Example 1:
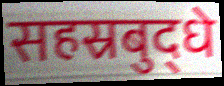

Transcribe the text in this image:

सहस्रबुद्धे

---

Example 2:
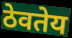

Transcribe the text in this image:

ठेवतेय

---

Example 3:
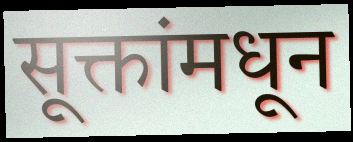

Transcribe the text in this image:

सूक्तांमधून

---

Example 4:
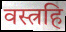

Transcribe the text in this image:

वस्त्रहि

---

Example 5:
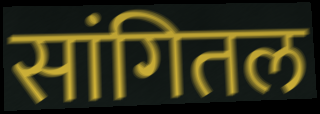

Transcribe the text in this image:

सांगितल